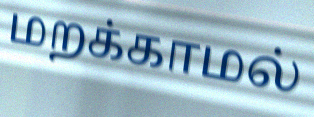
மறக்காமல்